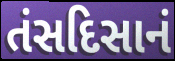
તંસદિસાનં